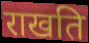
राखति